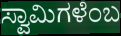
ಸ್ವಾಮಿಗಳೆಂಬ